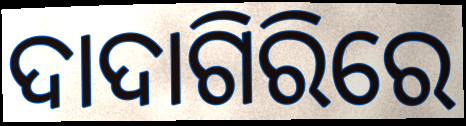
ଦାଦାଗିରିରେ